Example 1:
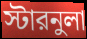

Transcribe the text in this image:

স্টারনুলা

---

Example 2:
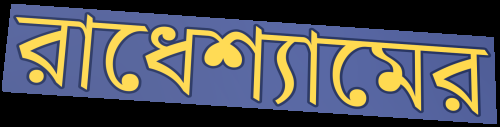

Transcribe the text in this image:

রাধেশ্যামের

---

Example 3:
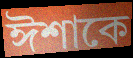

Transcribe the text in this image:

ঈশাকে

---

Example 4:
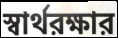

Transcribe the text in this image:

স্বার্থরক্ষার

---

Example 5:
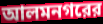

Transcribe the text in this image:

আলমনগরের